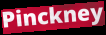
Pinckney